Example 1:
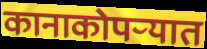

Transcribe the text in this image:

कानाकोपऱ्यात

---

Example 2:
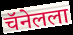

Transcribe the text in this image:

चॅनेलला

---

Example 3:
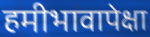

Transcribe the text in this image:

हमीभावापेक्षा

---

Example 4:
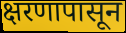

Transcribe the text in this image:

क्षरणापासून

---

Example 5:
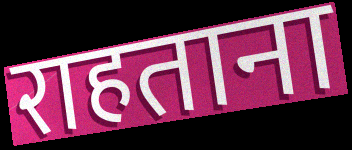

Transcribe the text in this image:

राहताना